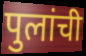
पुलांची